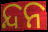
ନ୍ଦନ